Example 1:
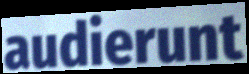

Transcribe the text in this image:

audierunt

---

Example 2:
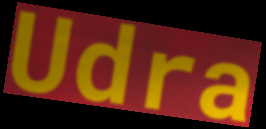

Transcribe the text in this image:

Udra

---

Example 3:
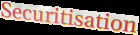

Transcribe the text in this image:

Securitisation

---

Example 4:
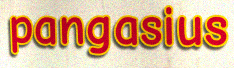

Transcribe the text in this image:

pangasius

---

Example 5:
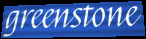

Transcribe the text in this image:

greenstone